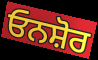
ਓਨਸ਼ੋਰ